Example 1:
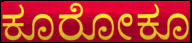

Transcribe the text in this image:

ಕೂರೋಕೂ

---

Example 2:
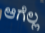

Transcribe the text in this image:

ಆಗೆಲ್ಲ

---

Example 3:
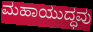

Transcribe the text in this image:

ಮಹಾಯುದ್ಧವು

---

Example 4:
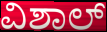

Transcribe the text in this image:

ವಿಶಾಲ್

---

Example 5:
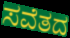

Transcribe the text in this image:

ಸವೆತದ